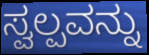
ಸ್ವಲ್ಪವನ್ನು